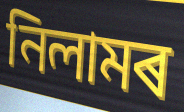
নিলামৰ